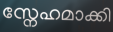
സ്നേഹമാക്കി